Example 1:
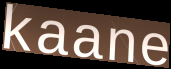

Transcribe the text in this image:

kaane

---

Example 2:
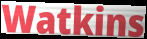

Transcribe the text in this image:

Watkins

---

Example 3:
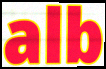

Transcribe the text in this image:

alb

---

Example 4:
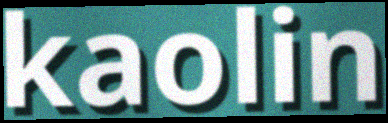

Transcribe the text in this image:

kaolin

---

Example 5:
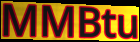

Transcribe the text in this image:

MMBtu